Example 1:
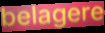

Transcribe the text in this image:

belagere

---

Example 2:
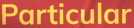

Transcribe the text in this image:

Particular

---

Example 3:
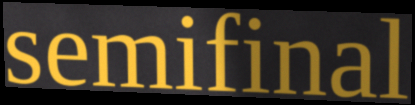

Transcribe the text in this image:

semifinal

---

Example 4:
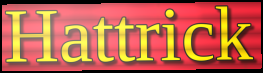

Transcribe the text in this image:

Hattrick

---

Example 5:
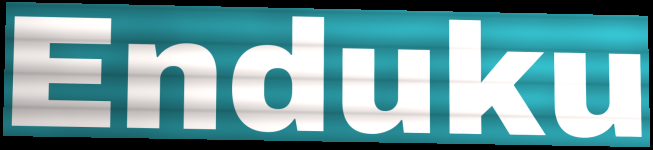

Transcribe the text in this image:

Enduku